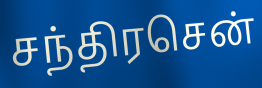
சந்திரசென்